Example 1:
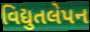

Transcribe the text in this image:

વિદ્યુતલેપન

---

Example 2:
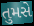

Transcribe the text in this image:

તુમસે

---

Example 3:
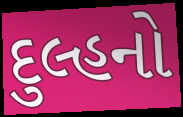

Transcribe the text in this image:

દુલ્હનો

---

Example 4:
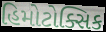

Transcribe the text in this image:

હિમોટોક્સિક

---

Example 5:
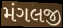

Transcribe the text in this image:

મંગલજી